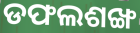
ଡଫଲଶଙ୍ଖ